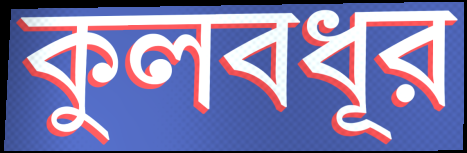
কুলবধূর